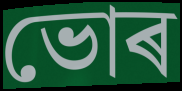
ভোৰ